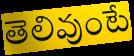
తెలివుంటే